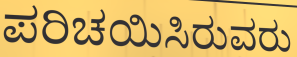
ಪರಿಚಯಿಸಿರುವರು